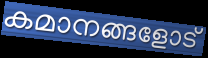
കമാനങ്ങളോട്